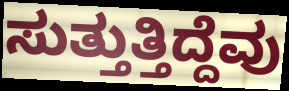
ಸುತ್ತುತ್ತಿದ್ದೆವು